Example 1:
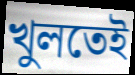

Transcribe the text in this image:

খুলতেই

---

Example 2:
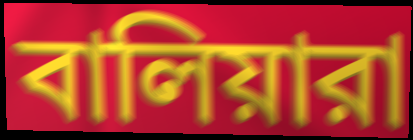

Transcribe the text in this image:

বালিয়ারা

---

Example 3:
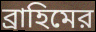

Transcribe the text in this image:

ব্রাহিমের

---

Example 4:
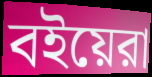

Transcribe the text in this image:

বইয়েরা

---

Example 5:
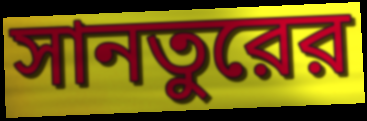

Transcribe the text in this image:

সানতুরের